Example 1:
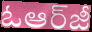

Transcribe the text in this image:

ఓఆర్‌జీ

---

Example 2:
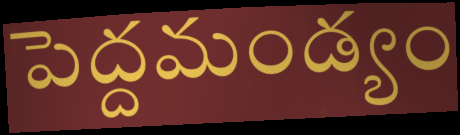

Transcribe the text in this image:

పెద్దమండ్యం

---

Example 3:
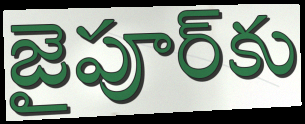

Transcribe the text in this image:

జైపూర్‌కు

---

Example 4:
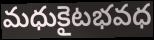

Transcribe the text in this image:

మధుకైటభవధ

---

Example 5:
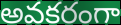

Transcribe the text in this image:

అవకరంగా